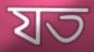
যত